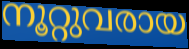
നൂറ്റുവരായ